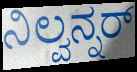
ನಿಲ್ವನ್ನರ್